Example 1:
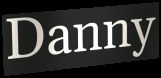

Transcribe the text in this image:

Danny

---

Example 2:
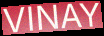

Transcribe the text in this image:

VINAY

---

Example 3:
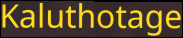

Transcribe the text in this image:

Kaluthotage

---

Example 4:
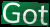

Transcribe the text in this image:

Got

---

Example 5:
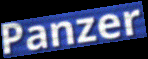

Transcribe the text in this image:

Panzer